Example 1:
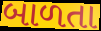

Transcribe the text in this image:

બાળતા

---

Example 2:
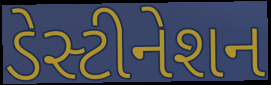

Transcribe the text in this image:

ડેસ્ટીનેશન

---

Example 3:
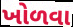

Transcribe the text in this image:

ખોળવા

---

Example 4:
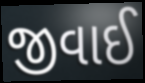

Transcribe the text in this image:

જીવાઈ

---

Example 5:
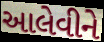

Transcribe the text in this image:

આલેવીને